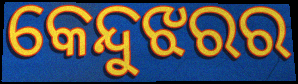
କେନ୍ଦୁଝରର